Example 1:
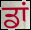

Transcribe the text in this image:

ਡਾਂ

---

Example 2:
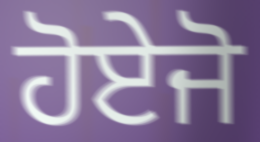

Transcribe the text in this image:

ਹੋਏਜੋ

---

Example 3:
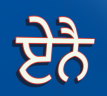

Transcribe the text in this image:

ਏਨੈ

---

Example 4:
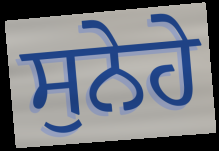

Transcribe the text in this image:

ਸੁਨੇਹੇ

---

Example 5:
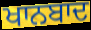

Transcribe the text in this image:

ਖਾਨਬਾਦ